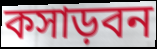
কসাড়বন